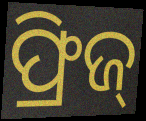
ଫ୍ରିଜ୍